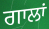
ਗਾਲਾਂ